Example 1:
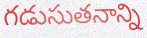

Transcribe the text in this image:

గడుసుతనాన్ని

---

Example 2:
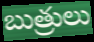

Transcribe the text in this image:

బుత్రులు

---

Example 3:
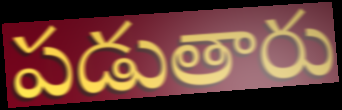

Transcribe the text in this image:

పడుతారు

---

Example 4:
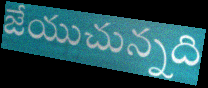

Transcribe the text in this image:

జేయుచున్నది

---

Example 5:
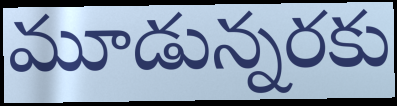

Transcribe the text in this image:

మూడున్నరకు